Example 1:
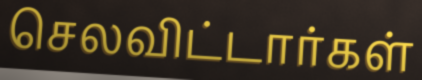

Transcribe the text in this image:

செலவிட்டார்கள்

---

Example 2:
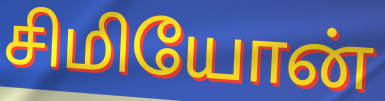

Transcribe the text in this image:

சிமியோன்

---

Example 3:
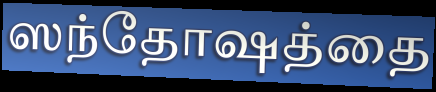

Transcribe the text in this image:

ஸந்தோஷத்தை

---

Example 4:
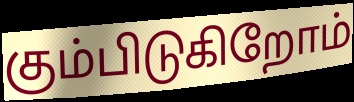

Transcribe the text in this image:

கும்பிடுகிறோம்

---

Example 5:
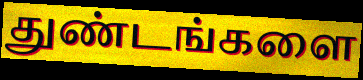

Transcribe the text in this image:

துண்டங்களை